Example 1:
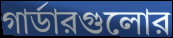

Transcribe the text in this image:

গার্ডারগুলোর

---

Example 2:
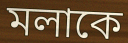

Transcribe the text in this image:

মলাকে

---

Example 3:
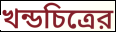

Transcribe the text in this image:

খন্ডচিত্রের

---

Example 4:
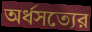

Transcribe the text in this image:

অর্ধসত্যের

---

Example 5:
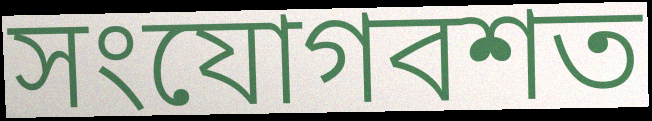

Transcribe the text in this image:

সংযোগবশত